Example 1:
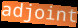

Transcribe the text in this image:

adjoint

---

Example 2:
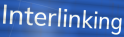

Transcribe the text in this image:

Interlinking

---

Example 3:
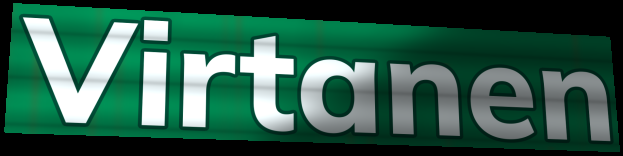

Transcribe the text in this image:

Virtanen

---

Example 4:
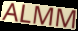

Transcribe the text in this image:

ALMM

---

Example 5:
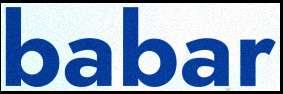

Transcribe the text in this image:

babar